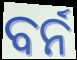
ବର୍ନ